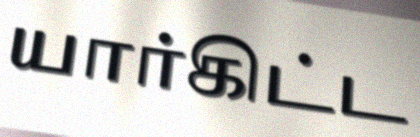
யார்கிட்ட